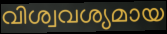
വിശ്വവശ്യമായ